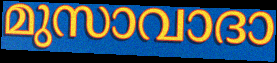
മുസാവാദാ